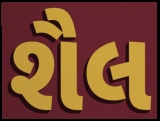
શૈલ